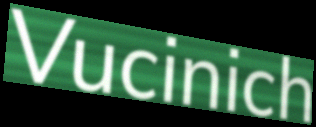
Vucinich